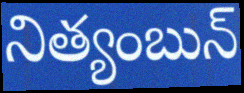
నిత్యంబున్